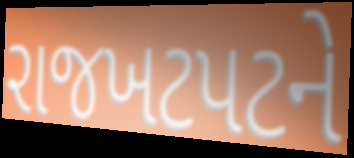
રાજખટપટને